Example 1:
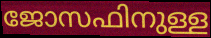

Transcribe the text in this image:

ജോസഫിനുള്ള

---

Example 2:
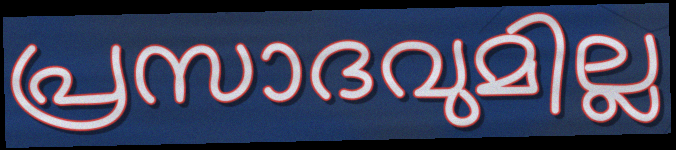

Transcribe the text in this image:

പ്രസാദവുമില്ല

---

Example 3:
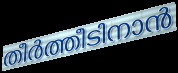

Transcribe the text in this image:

തീർത്തീടിനാൻ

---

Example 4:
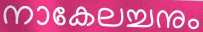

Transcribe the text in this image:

നാകേലച്ചനും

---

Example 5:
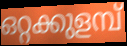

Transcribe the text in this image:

ഒറ്റക്കുളമ്പ്